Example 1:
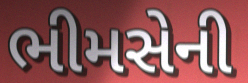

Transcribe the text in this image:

ભીમસેની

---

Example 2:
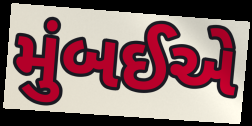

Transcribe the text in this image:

મુંબઈએ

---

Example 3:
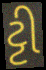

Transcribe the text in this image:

ટ્ટી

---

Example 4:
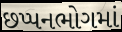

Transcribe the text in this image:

છપ્પનભોગમાં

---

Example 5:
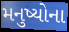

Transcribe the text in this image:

મનુષ્યોના